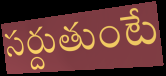
సర్దుతుంటే